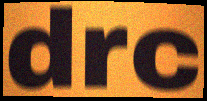
drc